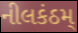
નીલકંઠમ્